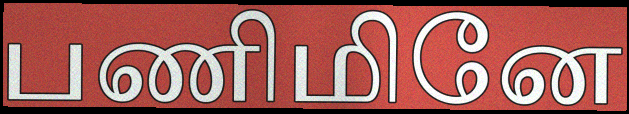
பணிமினே